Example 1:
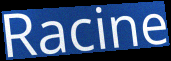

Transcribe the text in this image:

Racine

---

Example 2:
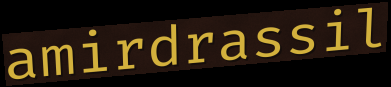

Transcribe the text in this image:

amirdrassil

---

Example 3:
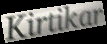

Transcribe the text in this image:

Kirtikar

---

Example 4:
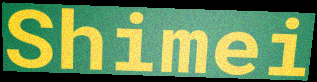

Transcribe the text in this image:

Shimei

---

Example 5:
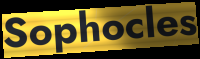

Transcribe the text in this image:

Sophocles